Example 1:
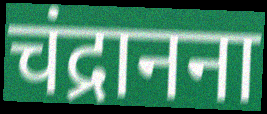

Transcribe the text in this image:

चंद्रानना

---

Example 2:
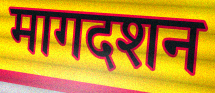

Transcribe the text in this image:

मागदशन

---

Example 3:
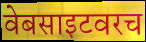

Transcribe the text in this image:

वेबसाइटवरच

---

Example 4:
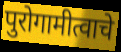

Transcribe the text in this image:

पुरोगामीत्वाचे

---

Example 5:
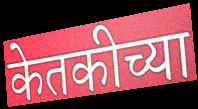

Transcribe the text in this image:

केतकीच्या